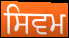
ਸਿਵਮ